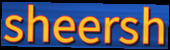
sheersh